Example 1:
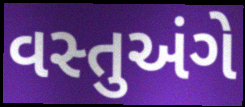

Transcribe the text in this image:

વસ્તુઅંગે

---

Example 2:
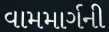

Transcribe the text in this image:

વામમાર્ગની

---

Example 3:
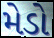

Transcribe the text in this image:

મેડો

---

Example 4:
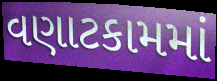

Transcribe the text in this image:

વણાટકામમાં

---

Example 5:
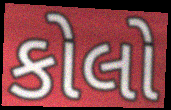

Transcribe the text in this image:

કોલો